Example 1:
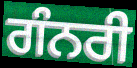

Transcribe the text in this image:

ਗੰਨਰੀ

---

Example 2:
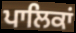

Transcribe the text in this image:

ਪਾਲਿਕਾਂ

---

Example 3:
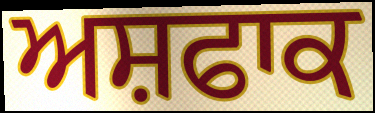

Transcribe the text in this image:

ਅਸ਼ਫਾਕ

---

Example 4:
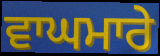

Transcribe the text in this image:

ਵਾਘਮਾਰੇ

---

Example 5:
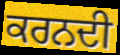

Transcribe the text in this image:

ਕਰਨਦੀ